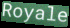
Royale